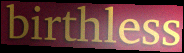
birthless